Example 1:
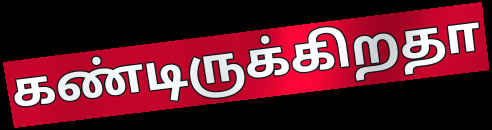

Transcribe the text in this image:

கண்டிருக்கிறதா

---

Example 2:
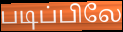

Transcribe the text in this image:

படிப்பிலே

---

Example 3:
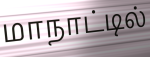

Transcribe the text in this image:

மாநாட்டில்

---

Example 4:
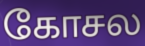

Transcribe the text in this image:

கோசல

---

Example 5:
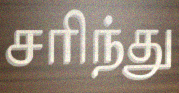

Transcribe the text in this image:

சரிந்து